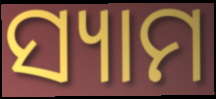
ସ୍ୟାମ